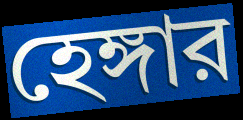
হেঙ্গার